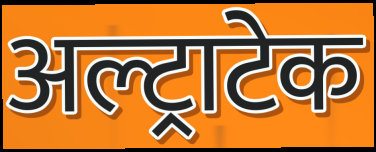
अल्‍ट्राटेक